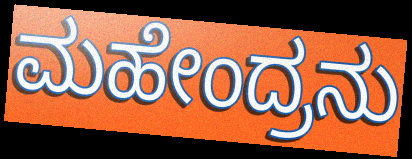
ಮಹೇಂದ್ರನು